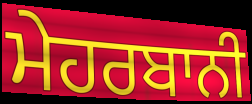
ਮੇਹਰਬਾਨੀ